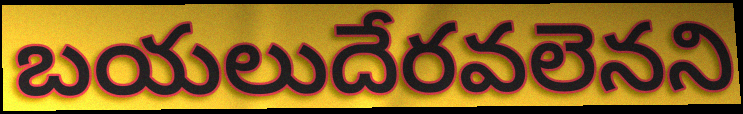
బయలుదేరవలెనని